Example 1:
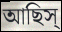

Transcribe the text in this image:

আছিস্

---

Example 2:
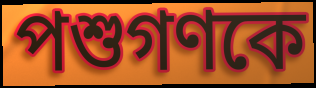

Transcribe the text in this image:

পশুগণকে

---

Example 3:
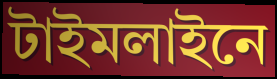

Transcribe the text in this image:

টাইমলাইনে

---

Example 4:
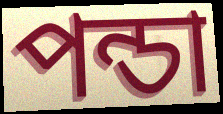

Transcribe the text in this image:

পন্ডা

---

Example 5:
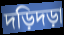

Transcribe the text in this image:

দড়িদড়া